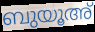
ബുയൂഅ്